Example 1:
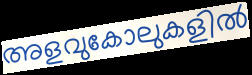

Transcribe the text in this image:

അളവുകോലുകളിൽ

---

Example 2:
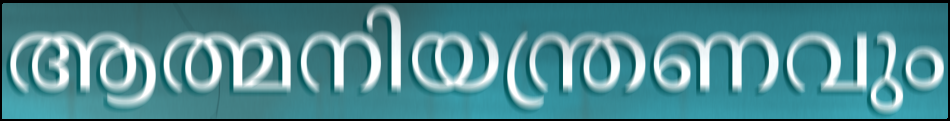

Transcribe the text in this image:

ആത്മനിയന്ത്രണവും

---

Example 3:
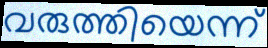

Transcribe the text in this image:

വരുത്തിയെന്ന്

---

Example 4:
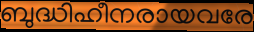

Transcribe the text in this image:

ബുദ്ധിഹീനരായവരേ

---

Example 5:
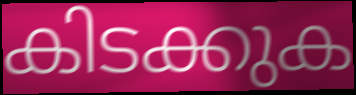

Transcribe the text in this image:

കിടക്കുക